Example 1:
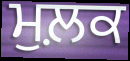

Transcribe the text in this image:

ਮੁਲ਼ਕ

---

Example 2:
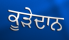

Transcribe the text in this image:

ਕੂੜੇਦਾਨ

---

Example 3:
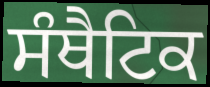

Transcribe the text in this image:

ਸੰਥੈਟਿਕ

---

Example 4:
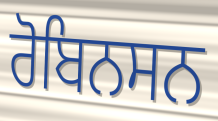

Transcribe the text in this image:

ਰੋਬਿਨਸਨ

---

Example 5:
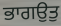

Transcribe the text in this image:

ਭਾਗਉਤੁ